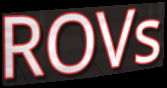
ROVs